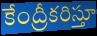
కేంద్రీకరిస్తూ